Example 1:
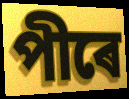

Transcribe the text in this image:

পীৰে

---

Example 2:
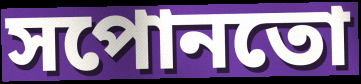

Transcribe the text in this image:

সপোনতো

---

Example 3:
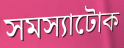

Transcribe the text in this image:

সমস্যাটোক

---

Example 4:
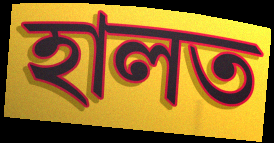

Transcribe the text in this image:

হালত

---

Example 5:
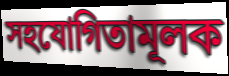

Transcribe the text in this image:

সহযোগিতামূলক